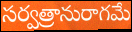
సర్వత్రానురాగమే